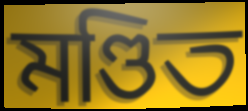
মণ্ডিত